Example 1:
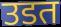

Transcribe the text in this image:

उडत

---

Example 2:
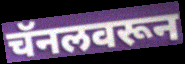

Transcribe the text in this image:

चॅनलवरून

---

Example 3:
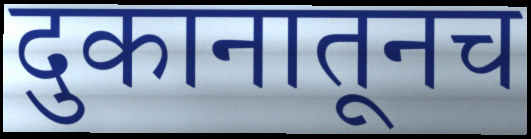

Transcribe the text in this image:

दुकानातूनच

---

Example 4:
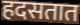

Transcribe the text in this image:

हदसतात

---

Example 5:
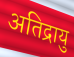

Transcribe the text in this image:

अतिद्रायु